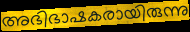
അഭിഭാഷകരായിരുന്നു